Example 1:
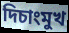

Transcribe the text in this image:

দিচাংমুখ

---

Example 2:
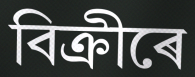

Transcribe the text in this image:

বিক্ৰীৰে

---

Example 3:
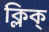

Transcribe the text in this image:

ক্লিক্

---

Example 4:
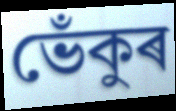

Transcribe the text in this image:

ভেঁকুৰ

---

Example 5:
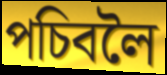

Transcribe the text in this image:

পচিবলৈ